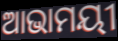
ଆଭାମୟୀ